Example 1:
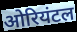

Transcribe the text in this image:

ओरियंटल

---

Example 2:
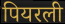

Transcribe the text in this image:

पियरली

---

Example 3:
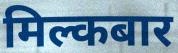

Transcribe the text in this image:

मिल्कबार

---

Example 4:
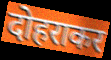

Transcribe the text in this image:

दोहराकर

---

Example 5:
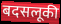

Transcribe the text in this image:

बदसलूकी